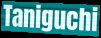
Taniguchi